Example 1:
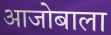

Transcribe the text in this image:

आजोबाला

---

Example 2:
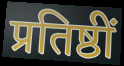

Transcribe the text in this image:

प्रतिष्ठीं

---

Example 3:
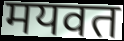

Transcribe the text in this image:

मयवत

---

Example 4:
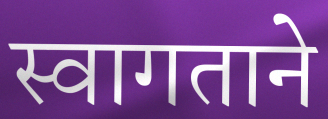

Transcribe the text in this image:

स्वागताने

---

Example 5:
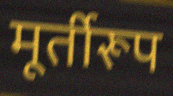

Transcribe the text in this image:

मूर्तीरूप